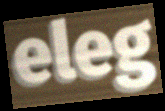
eleg